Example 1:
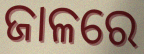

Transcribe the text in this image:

ଜାଳରେ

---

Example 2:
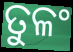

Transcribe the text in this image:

ତୁଳଂ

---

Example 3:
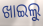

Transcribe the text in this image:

ଖାଇଲୁ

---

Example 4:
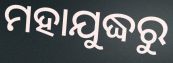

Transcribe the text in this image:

ମହାଯୁଦ୍ଧରୁ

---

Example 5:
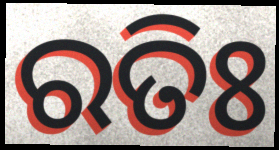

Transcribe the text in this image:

ରତିଃ